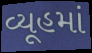
વ્યૂહમાં